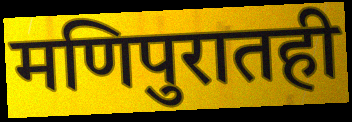
मणिपुरातही